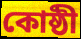
কোষ্ঠী